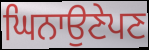
ਘਿਨਾਉਣੇਪਣ